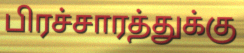
பிரச்சாரத்துக்கு